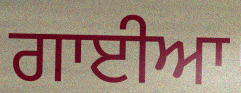
ਗਾਈਆ